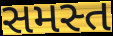
સમસ્ત